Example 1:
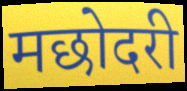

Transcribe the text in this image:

मछोदरी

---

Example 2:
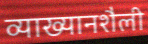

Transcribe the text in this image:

व्याख्यानशैली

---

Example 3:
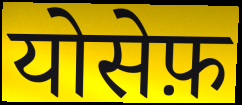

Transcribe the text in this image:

योसेफ़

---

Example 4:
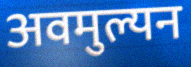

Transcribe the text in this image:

अवमुल्यन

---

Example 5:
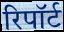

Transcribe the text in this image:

रिपॉर्ट